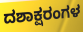
ದಶಾಕ್ಷರಂಗಳ